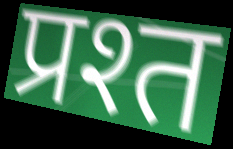
प्रश्त